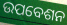
ଉପବେଶନ